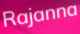
Rajanna